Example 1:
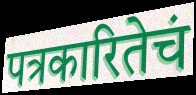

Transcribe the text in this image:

पत्रकारितेचं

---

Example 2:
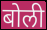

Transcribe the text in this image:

बोली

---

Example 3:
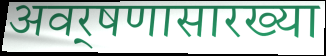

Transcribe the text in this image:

अवर्षणासारख्या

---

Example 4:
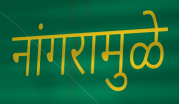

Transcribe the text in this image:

नांगरामुळे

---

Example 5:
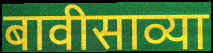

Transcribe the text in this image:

बावीसाव्या